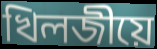
খিলজীয়ে